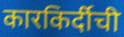
कारकिर्दीची